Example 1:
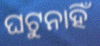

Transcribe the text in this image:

ଘଟୁନାହିଁ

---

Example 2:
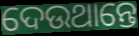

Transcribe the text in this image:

ଦେଉଥାନ୍ତେ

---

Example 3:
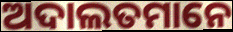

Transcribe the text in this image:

ଅଦାଲତମାନେ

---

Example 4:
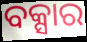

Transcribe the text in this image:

ବକ୍ସାର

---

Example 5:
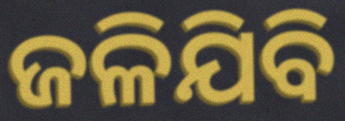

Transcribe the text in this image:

ଜଳିଯିବି